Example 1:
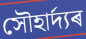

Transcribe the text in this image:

সৌহাৰ্দ্যৰ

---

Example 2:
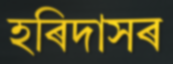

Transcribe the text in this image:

হৰিদাসৰ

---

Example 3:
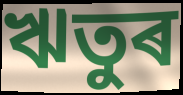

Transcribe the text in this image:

ঋতুৰ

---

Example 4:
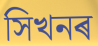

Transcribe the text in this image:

সিখনৰ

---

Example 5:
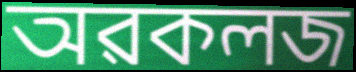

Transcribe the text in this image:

অৱকলজ